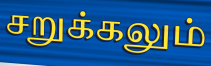
சறுக்கலும்